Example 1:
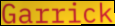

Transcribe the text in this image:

Garrick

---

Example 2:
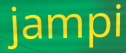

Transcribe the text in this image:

jampi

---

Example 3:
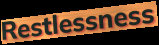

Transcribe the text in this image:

Restlessness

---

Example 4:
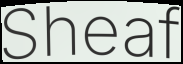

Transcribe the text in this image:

Sheaf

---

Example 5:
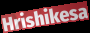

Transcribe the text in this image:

Hrishikesa